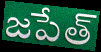
జపేత్